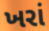
ખરાં